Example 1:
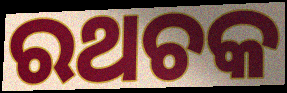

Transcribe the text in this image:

ରଥଚକ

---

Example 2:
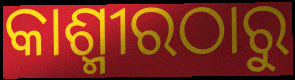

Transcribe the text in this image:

କାଶ୍ମୀରଠାରୁ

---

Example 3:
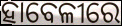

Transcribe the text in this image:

ହାବେଳୀରେ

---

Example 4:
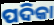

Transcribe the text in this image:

ପଦିକା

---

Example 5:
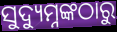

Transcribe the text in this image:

ସୁଦ୍ୟୁମ୍ନଙ୍କଠାରୁ